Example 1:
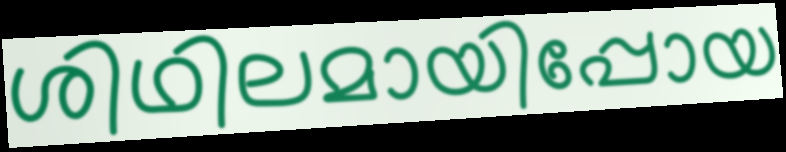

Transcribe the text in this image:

ശിഥിലമായിപ്പോയ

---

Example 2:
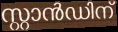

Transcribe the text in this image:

സ്റ്റാൻഡിന്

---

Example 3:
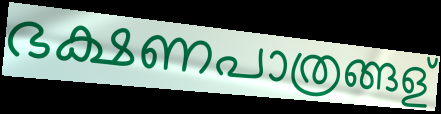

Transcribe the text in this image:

ഭക്ഷണപാത്രങ്ങള്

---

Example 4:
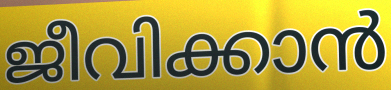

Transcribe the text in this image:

ജീവിക്കാൻ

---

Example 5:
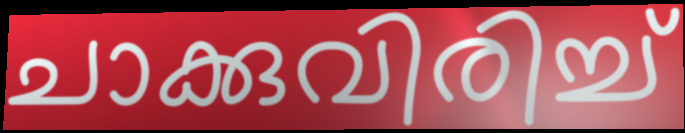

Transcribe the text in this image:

ചാക്കുവിരിച്ച്